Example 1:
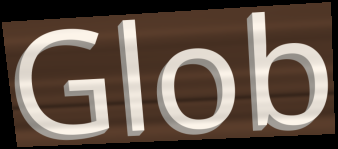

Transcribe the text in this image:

Glob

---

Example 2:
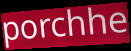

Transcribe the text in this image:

porchhe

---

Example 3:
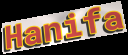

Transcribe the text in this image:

Hanifa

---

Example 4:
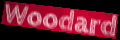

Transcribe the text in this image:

Woodard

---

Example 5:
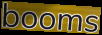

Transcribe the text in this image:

booms